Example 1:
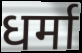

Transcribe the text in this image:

धर्मा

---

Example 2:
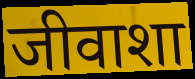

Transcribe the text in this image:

जीवाशा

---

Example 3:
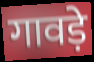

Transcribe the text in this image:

गावड़े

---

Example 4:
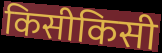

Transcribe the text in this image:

किसीकिसी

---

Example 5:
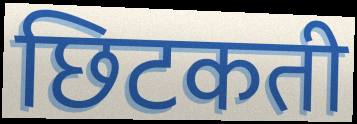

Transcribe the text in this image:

छिटकती